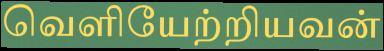
வெளியேற்றியவன்